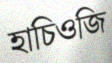
হাচিওজি